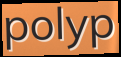
polyp